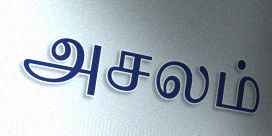
அசலம்